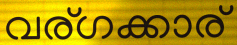
വര്ഗക്കാര്